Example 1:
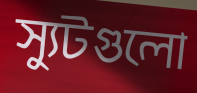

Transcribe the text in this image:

স্যুটগুলো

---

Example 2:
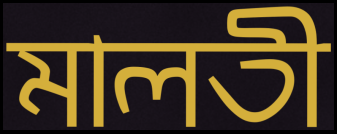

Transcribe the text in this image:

মালতী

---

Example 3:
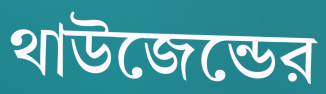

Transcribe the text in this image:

থাউজেন্ডের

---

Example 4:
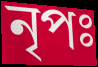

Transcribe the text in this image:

নৃপঃ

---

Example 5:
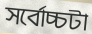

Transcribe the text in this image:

সর্বোচ্চটা